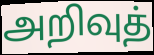
அறிவுத்